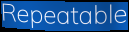
Repeatable